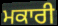
ਮਕਾਰੀ